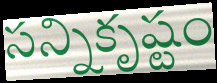
సన్నికృష్టం